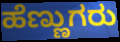
ಹೆಣ್ಣುಗರು